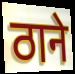
ठाने